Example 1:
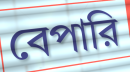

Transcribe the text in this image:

বেপারি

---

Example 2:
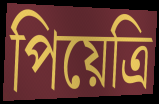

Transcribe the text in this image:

পিয়েত্রি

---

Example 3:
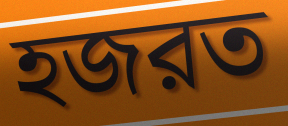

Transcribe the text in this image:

হজরত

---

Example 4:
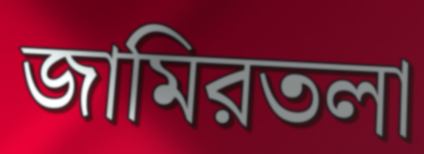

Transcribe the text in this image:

জামিরতলা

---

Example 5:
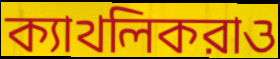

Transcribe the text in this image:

ক্যাথলিকরাও